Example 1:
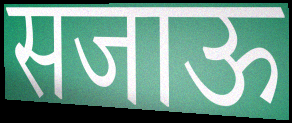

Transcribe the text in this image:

सजाऊ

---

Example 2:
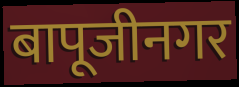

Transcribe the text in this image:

बापूजीनगर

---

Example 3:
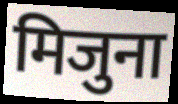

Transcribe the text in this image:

मिजुना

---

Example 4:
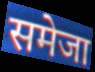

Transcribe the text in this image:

समेजा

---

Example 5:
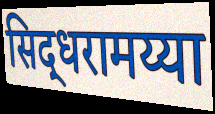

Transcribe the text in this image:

सिद्धरामय्या